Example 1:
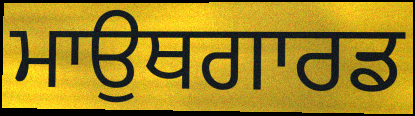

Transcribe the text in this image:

ਮਾਉਥਗਾਰਡ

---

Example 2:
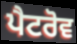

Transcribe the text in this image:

ਪੈਟਰੋਵ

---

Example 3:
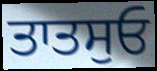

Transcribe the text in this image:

ਤਾਤਸੁਓ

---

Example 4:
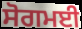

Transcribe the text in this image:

ਸੋਗਮਈ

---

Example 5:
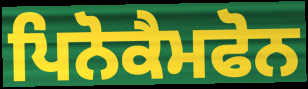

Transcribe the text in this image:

ਪਿਨੋਕੈਮਫੋਨ